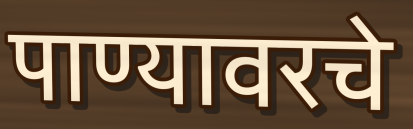
पाण्यावरचे